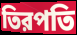
তিরপতি